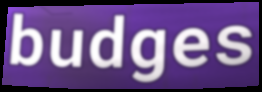
budges